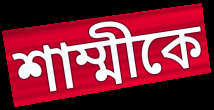
শাম্মীকে